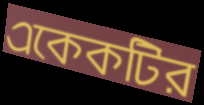
একেকটির